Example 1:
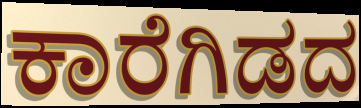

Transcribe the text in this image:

ಕಾರೆಗಿಡದ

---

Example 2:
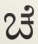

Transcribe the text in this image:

ಚೆ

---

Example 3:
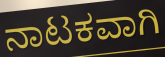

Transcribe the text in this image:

ನಾಟಕವಾಗಿ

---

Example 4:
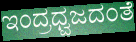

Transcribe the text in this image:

ಇಂದ್ರಧ್ವಜದಂತೆ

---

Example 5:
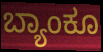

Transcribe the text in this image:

ಬ್ಯಾಂಕೂ